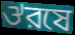
ঔরষে